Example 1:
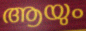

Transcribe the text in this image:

ആയും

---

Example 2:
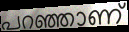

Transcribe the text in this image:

പറഞ്ഞാണ്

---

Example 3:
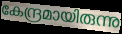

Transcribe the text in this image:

കേന്ദ്രമായിരുന്നു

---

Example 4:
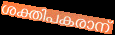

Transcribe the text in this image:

ശക്തിപകരാന്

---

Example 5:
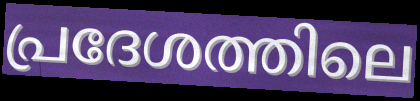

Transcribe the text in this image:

പ്രദേശത്തിലെ